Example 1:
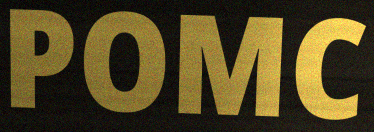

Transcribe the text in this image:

POMC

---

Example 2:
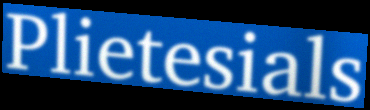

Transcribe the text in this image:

Plietesials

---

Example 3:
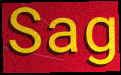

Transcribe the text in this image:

Sag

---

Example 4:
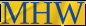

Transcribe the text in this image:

MHW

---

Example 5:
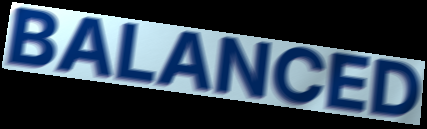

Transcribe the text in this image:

BALANCED